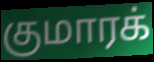
குமாரக்